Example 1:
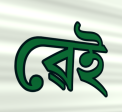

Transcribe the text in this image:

ৱেই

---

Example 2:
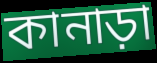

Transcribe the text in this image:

কানাড়া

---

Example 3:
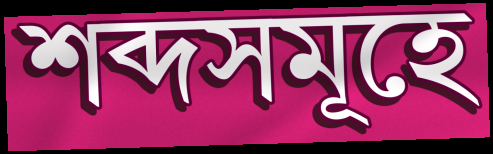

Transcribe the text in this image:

শব্দসমূহে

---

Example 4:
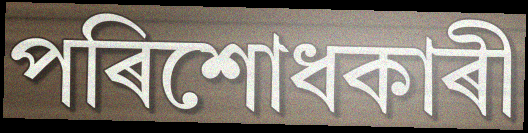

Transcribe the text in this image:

পৰিশোধকাৰী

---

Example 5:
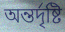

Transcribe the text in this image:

অন্তৰ্দৃষ্টি